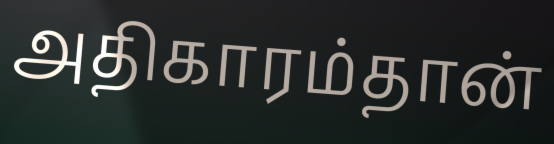
அதிகாரம்தான்